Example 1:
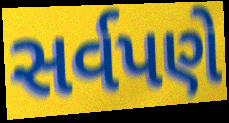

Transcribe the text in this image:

સર્વપણે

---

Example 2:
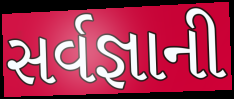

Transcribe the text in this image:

સર્વજ્ઞાની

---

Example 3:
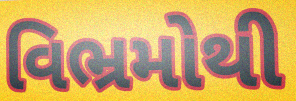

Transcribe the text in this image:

વિભ્રમોથી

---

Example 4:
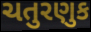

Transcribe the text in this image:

ચતુરણુક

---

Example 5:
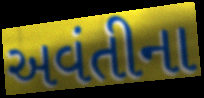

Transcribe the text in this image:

અવંતીના